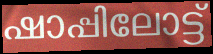
ഷാപ്പിലോട്ട്